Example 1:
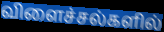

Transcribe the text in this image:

விளைச்சல்களில்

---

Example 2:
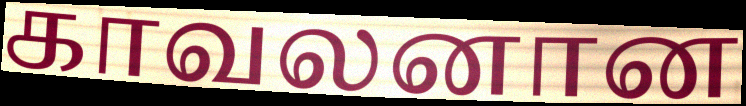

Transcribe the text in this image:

காவலனான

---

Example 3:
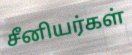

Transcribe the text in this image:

சீனியர்கள்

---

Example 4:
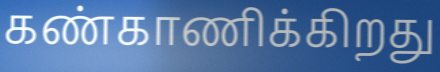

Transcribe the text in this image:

கண்காணிக்கிறது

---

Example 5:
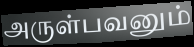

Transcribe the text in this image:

அருள்பவனும்